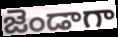
జెండాగా